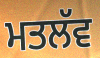
ਮਤਲੱਵ